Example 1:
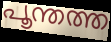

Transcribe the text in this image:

പൂന്തത്ത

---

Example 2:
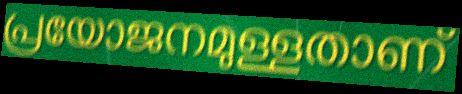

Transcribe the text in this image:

പ്രയോജനമുള്ളതാണ്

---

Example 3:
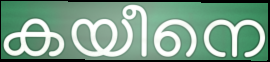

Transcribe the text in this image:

കയീനെ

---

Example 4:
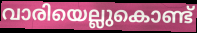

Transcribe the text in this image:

വാരിയെല്ലുകൊണ്ട്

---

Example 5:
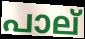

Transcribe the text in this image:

പാല്